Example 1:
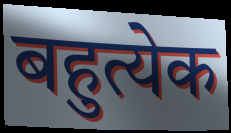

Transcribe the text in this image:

बहुत्येक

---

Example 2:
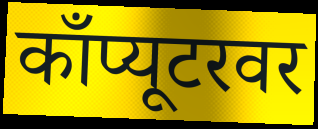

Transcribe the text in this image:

काँप्यूटरवर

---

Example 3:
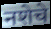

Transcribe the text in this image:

नशेचे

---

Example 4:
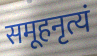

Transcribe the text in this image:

समूहनृत्यं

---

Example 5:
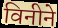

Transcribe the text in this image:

विनीने